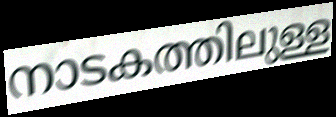
നാടകത്തിലുള്ള